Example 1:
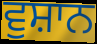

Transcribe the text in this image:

ਵੁਸ਼ਾਨ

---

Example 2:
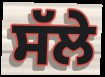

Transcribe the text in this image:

ਸੱਲੇ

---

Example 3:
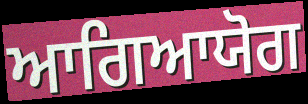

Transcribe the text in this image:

ਆਗਿਆਯੋਗ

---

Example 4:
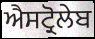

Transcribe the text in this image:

ਐਸਟ੍ਰੋਲੇਬ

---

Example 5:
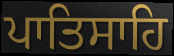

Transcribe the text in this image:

ਪਾਤਿਸਾਹਿ